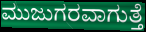
ಮುಜುಗರವಾಗುತ್ತೆ